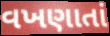
વખણાતાં